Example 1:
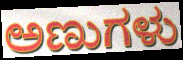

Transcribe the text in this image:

ಅಣುಗಳು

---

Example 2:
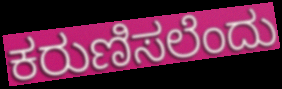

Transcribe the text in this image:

ಕರುಣಿಸಲೆಂದು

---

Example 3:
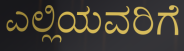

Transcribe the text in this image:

ಎಲ್ಲಿಯವರಿಗೆ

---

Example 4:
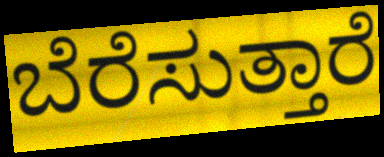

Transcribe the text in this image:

ಬೆರೆಸುತ್ತಾರೆ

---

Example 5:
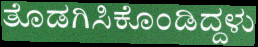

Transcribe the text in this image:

ತೊಡಗಿಸಿಕೊಂಡಿದ್ದಳು